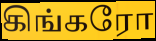
கிங்கரோ